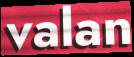
valan